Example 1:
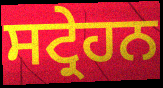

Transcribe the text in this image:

ਸਟ੍ਰੇਹਨ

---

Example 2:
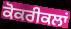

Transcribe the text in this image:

ਕੋਕਰੀਕਲਾਂ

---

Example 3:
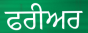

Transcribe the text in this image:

ਫਰੀਅਰ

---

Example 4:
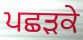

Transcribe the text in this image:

ਪਛੜਕੇ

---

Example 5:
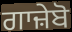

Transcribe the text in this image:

ਗਾਜ਼ੇਬੋ